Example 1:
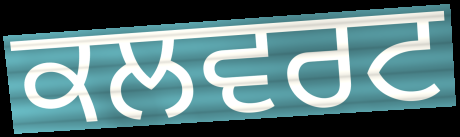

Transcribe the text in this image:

ਕਲਵਰਟ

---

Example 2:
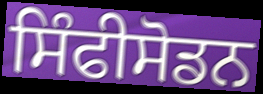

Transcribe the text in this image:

ਸਿੰਫੀਸੋਡਨ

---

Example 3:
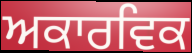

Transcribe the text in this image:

ਅਕਾਰਵਿਕ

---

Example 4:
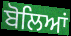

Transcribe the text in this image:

ਬੋਲਿਆਂ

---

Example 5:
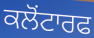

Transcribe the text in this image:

ਕਲੋਂਟਾਰਫ